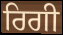
ਰਿਗੀ